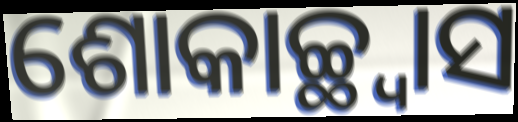
ଶୋକାଚ୍ଛ୍ୱାସ